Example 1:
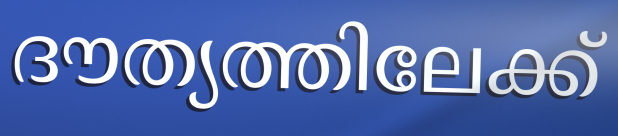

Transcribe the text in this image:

ദൗത്യത്തിലേക്ക്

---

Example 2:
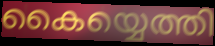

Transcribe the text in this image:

കൈയ്യെത്തി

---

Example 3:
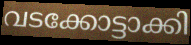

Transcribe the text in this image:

വടക്കോട്ടാക്കി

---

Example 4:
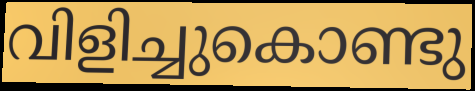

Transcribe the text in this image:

വിളിച്ചുകൊണ്ടു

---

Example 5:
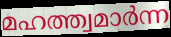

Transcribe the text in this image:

മഹത്ത്വമാർന്ന